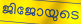
ജിജോയുടെ